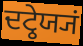
ਦਟ੍ਠੇਯ੍ਯਂ